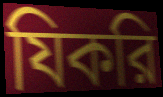
যিকরি